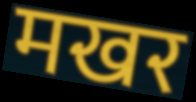
मखर